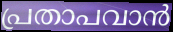
പ്രതാപവാൻ